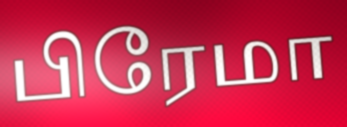
பிரேமா